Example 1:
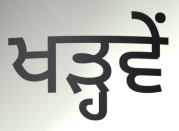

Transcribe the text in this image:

ਖੜ੍ਹਵੇਂ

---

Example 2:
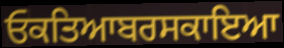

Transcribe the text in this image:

ਓਕਤਿਆਬਰਸਕਾਇਆ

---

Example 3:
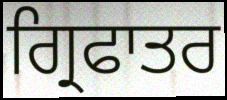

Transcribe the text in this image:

ਗ੍ਰਿਫਾਤਰ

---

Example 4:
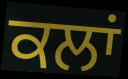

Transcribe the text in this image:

ਕਲਾਂ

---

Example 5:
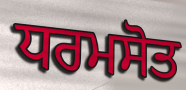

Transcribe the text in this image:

ਧਰਮਸੋਤ